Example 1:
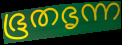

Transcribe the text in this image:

ഭൂതഭൃന്ന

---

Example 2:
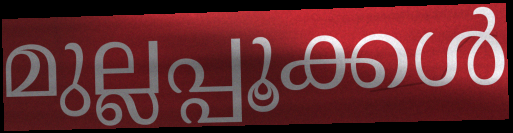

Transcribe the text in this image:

മുല്ലപ്പൂക്കൾ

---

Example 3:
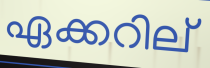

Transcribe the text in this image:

ഏക്കറില്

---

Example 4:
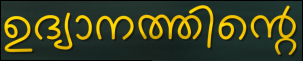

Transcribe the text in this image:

ഉദ്യാനത്തിന്റെ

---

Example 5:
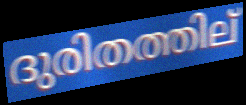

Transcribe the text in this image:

ദുരിതത്തില്